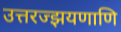
उत्तरज्झयणाणि